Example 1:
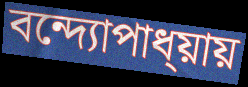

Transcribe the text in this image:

বন্দ্যোপাধ্য়ায়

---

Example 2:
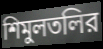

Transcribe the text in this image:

শিমুলতলির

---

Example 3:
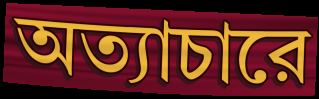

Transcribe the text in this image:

অত্যাচারে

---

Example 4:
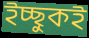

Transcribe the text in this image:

ইচ্ছুকই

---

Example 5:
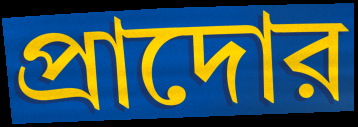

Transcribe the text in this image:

প্রাদোর